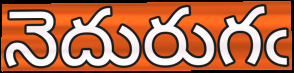
నెదురుగఁ